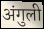
अंगुली